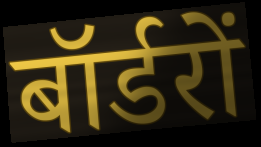
बॉर्डरों